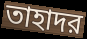
তাহাদর